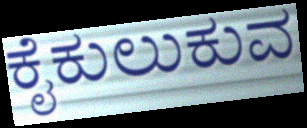
ಕೈಕುಲುಕುವ